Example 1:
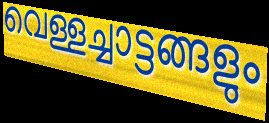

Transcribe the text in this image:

വെള്ളച്ചാട്ടങ്ങളും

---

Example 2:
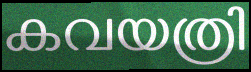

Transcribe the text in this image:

കവയത്രി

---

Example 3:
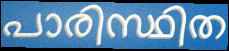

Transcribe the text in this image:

പാരിസ്ഥിത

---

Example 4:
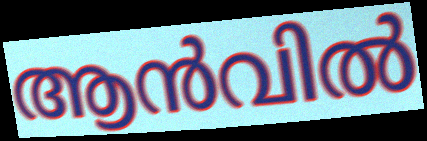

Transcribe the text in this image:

ആൻവിൽ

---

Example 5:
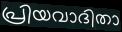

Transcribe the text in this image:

പ്രിയവാദിതാ